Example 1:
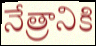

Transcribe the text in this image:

నేత్రానికి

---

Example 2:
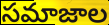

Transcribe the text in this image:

సమాజాల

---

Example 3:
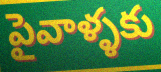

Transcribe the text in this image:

పైవాళ్ళకు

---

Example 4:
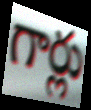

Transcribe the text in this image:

గార్లు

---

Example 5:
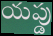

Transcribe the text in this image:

యప్డు